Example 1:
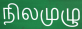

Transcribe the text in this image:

நிலமுழு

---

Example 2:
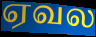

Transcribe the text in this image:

ஏவல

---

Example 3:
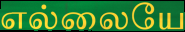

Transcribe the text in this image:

எல்லையே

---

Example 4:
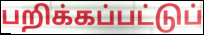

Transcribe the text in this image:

பறிக்கப்பட்டுப்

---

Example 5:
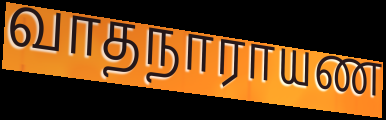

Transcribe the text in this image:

வாதநாராயண